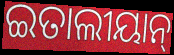
ଇତାଲୀୟାନ୍